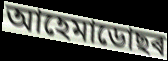
আহেমাডোছৰ